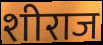
शीराज